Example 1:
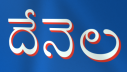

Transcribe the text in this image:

దేనెల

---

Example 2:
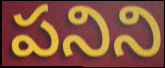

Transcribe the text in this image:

పనిని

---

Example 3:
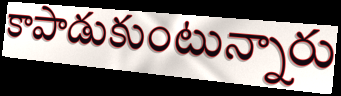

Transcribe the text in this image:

కాపాడుకుంటున్నారు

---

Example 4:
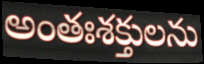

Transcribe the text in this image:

అంతఃశక్తులను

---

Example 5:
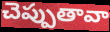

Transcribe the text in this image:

చెప్పుతావా